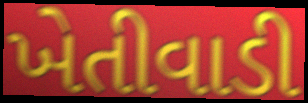
ખેતીવાડી